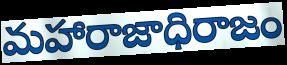
మహారాజాధిరాజం